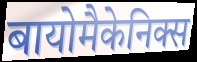
बायोमैकेनिक्स